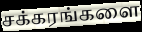
சக்கரங்களை